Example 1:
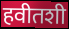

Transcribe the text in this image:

हवीतशी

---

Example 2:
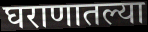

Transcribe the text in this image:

घराणातल्या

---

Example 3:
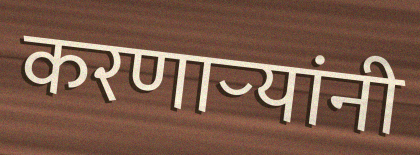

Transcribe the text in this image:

करणाऱ्यांनी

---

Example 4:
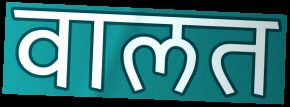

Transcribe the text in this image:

वालत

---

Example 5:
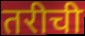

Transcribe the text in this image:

तरीची